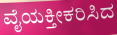
ವೈಯಕ್ತೀಕರಿಸಿದ